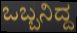
ಒಬ್ಬನಿದ್ದ